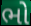
ભો